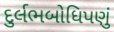
દુર્લભબોધિપણું